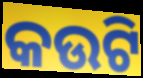
କଉଟି